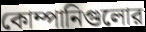
কোম্পানিগুলোর